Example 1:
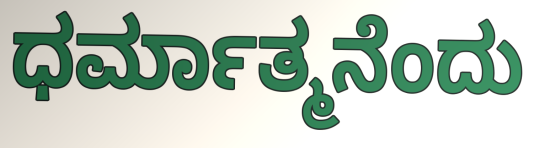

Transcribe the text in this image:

ಧರ್ಮಾತ್ಮನೆಂದು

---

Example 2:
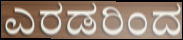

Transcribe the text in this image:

ಎರಡರಿಂದ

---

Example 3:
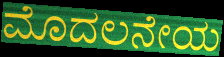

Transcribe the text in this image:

ಮೊದಲನೇಯ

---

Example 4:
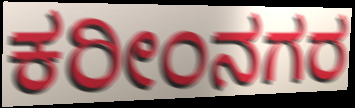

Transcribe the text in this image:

ಕರೀಂನಗರ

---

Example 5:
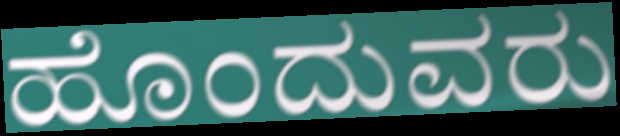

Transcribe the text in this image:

ಹೊಂದುವರು